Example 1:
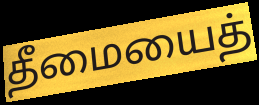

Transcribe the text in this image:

தீமையைத்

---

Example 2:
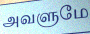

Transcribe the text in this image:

அவளுமே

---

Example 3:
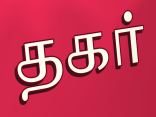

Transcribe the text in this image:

தகர்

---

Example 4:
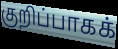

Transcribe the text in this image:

குறிப்பாகக்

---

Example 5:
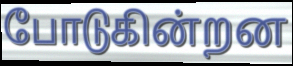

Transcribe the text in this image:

போடுகின்றன